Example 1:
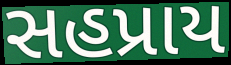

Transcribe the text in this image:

સહપ્રાય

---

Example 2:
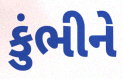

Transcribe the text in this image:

કુંભીને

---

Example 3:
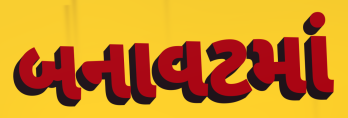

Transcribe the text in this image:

બનાવટમાં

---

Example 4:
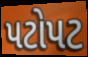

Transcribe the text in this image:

પટોપટ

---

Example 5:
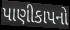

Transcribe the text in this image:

પાણીકાપનો